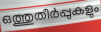
ഒത്തുതീർപ്പുകളും